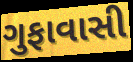
ગુફાવાસી